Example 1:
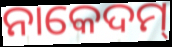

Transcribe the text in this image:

ନାକେଦମ୍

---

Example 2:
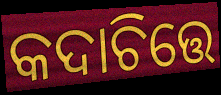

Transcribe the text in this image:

କଦାଚିତ୍ତେ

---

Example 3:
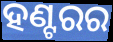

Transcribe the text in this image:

ହଣ୍ଟରର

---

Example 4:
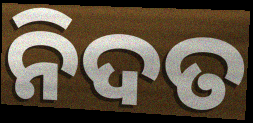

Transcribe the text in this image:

ନିଦତ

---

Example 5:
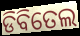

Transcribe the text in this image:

ଡିବିତେଲ